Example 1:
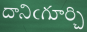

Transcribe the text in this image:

దానిఁగూర్చి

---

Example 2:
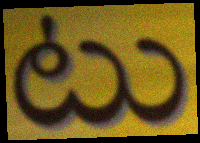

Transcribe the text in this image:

టు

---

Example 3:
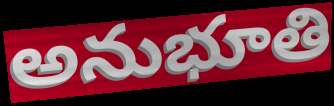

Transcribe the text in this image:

అనుభూతి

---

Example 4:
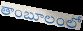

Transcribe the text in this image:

తాంబూలంలో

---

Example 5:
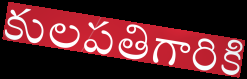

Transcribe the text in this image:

కులపతిగారికి